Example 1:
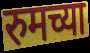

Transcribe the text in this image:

रुमच्या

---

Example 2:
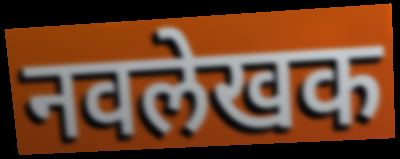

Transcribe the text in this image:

नवलेखक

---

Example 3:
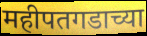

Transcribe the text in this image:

महीपतगडाच्या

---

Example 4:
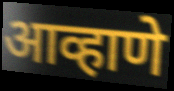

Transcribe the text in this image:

आव्हाणे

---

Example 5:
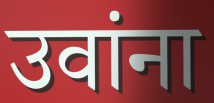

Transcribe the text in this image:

उवांना